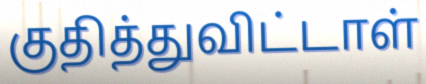
குதித்துவிட்டாள்